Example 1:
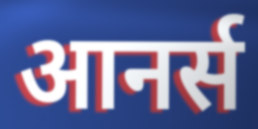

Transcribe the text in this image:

आनर्स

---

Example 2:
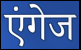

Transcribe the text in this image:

एंगेज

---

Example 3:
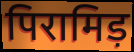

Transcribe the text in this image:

पिरामिड़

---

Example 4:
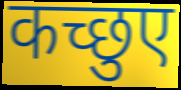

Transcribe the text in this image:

कच्छुए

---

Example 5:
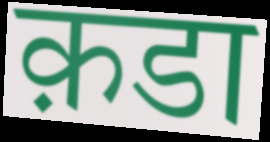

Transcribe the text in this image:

क़डा